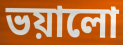
ভয়ালো